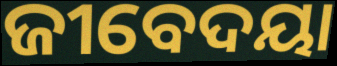
ଜୀବେଦୟା